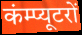
कंम्प्यूटरों